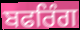
ਬਫਰਿੰਗ